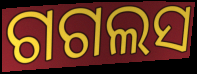
ଗଗଲସ